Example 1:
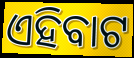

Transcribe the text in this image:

ଏହିବାଟ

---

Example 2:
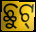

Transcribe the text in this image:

ଛୁଟ୍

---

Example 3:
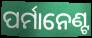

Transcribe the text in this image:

ପର୍ମାନେଣ୍ଟ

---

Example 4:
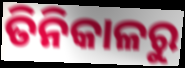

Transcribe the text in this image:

ତିନିକାଳରୁ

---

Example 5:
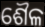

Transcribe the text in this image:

ଶୈଳ